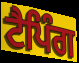
ਟੈਪਿੰਗ